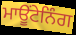
ਮਾਊਂਟੇਨਿੰਗ